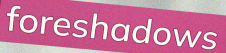
foreshadows